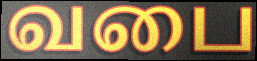
வபை